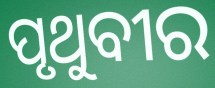
ପୃଥୁବୀର